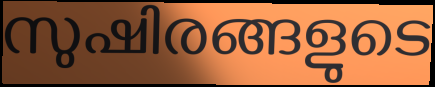
സുഷിരങ്ങളുടെ